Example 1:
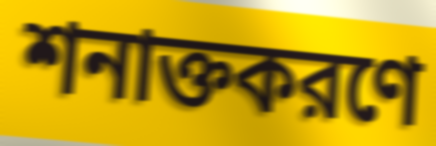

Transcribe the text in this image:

শনাক্তকরণে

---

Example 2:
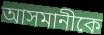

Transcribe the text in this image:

আসমানীকে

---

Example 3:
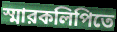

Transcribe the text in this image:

স্মারকলিপিতে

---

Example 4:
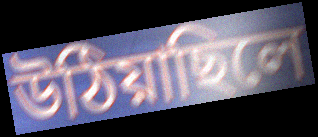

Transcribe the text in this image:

উঠিয়াছিলে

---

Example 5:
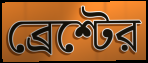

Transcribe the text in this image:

ব্রেশ্টের